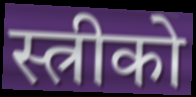
स्त्रीको